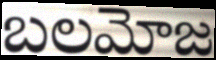
బలమోజ